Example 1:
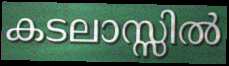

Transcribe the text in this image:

കടലാസ്സിൽ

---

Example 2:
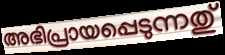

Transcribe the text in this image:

അഭിപ്രായപ്പെടുന്നതു്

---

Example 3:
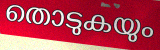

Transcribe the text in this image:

തൊടുകയും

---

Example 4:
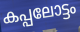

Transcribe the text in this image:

കപ്പലോട്ടം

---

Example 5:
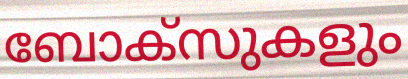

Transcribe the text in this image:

ബോക്സുകളും